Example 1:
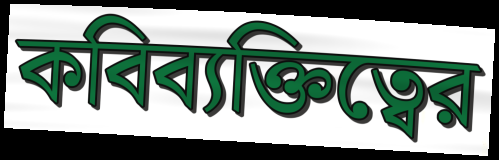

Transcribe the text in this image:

কবিব্যক্তিত্বের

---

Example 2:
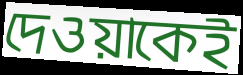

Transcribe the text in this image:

দেওয়াকেই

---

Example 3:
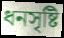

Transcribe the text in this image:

ধনসৃষ্টি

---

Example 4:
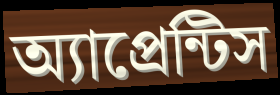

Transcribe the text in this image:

অ্যাপ্রেন্টিস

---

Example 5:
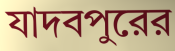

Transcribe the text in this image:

যাদবপুরের